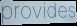
provides